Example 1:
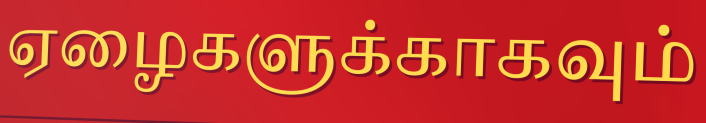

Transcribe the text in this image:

ஏழைகளுக்காகவும்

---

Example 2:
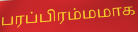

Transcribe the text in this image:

பரப்பிரம்மமாக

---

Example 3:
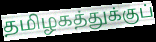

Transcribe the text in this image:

தமிழகத்துக்குப்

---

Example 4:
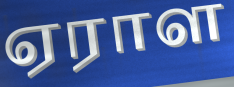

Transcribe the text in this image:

ஏராள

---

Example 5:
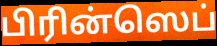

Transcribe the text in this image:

பிரின்ஸெப்